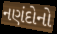
નણંદોનો